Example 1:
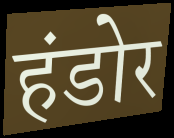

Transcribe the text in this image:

हंडोर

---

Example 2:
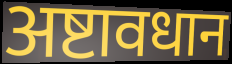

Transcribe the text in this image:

अष्टावधान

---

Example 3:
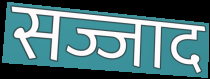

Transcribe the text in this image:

सज्जाद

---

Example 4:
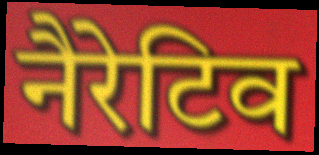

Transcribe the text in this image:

नैरेटिव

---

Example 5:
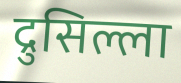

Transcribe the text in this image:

द्रुसिल्ला